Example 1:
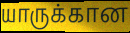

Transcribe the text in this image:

யாருக்கான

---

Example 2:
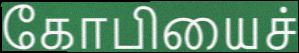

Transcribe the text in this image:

கோபியைச்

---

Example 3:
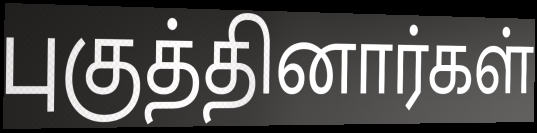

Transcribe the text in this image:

புகுத்தினார்கள்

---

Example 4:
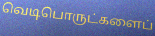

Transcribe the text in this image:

வெடிபொருட்களைப்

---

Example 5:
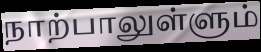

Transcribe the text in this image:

நாற்பாலுள்ளும்